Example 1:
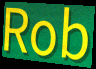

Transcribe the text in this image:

Rob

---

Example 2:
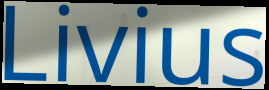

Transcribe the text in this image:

Livius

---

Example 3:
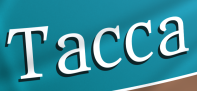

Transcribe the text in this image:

Tacca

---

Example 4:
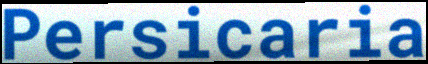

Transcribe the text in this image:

Persicaria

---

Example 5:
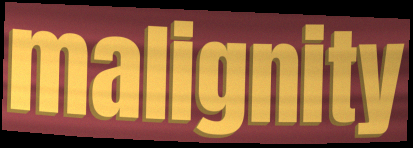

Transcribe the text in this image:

malignity